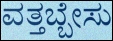
ವತ್ತಬ್ಬೇಸು